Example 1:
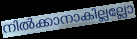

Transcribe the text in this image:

നിൽക്കാനാകില്ലല്ലോ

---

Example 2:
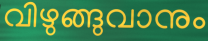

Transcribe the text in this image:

വിഴുങ്ങുവാനും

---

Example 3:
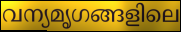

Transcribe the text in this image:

വന്യമൃഗങ്ങളിലെ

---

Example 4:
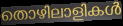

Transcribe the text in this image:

തൊഴിലാളികൾ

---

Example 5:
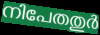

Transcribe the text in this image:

നിപേതതുർ